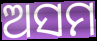
ଅସମ